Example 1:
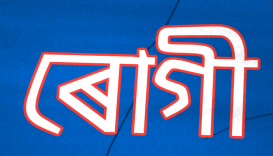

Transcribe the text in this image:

ৰোগী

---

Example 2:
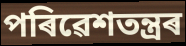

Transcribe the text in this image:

পৰিৱেশতন্ত্ৰৰ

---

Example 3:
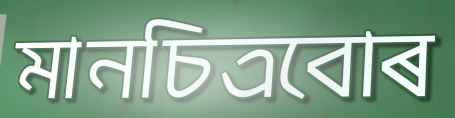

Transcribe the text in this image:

মানচিত্ৰবোৰ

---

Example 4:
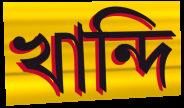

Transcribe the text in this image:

খান্দি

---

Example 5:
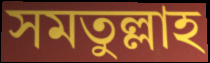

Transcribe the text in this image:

সমতুল্লাহ